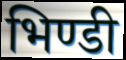
भिण्डी